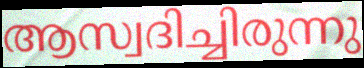
ആസ്വദിച്ചിരുന്നു